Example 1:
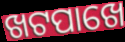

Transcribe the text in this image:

ଖଟପାଖେ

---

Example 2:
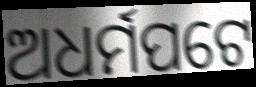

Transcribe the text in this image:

ଅଧର୍ମପଟେ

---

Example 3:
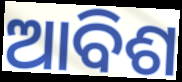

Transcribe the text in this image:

ଆବିଶ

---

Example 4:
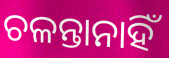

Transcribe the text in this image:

ଚଳନ୍ତାନାହିଁ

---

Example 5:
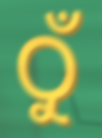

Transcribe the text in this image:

ଠୁଁ